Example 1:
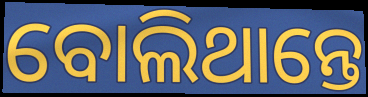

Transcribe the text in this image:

ବୋଲିଥାନ୍ତେ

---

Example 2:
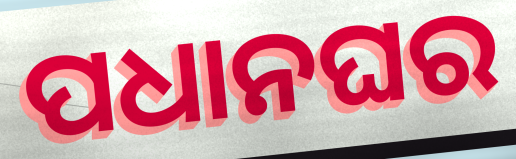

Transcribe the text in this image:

ପଧାନଘର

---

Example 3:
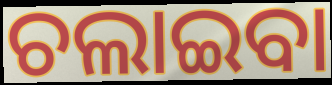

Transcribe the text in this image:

ଚଲାଇବା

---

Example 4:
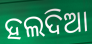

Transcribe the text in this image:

ହଲଦିଆ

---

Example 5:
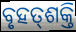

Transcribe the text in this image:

ବୃହତ୍‌ଶକ୍ତି